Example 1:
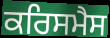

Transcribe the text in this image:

ਕਰਿਸਮੈਸ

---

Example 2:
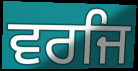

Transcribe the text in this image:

ਵਰਜਿ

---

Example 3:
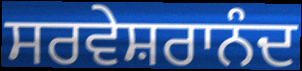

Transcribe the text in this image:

ਸਰਵੇਸ਼ਰਾਨੰਦ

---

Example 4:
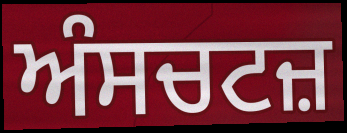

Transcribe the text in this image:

ਅੰਸਚਟਜ਼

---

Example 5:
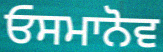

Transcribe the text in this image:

ਓਸਮਾਨੋਵ